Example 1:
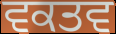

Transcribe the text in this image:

ਵਕਤਵ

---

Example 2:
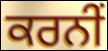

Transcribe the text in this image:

ਕਰਨੀਂ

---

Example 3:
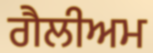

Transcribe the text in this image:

ਗੈਲੀਅਮ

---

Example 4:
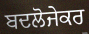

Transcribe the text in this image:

ਬਦਲੋਜੇਕਰ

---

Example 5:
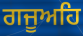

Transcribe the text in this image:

ਗਜੂਅਹਿ